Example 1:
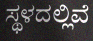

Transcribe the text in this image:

ಸ್ಥಳದಲ್ಲಿವೆ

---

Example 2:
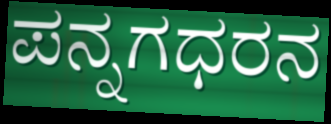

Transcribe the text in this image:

ಪನ್ನಗಧರನ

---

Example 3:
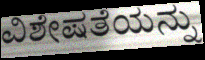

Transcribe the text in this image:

ವಿಶೇಷತೆಯನ್ನು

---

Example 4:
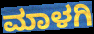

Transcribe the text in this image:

ಮಾಳಗಿ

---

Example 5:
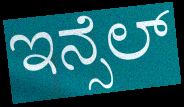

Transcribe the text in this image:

ಇನ್ಸೆಲ್